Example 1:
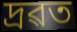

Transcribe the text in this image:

দ্ৰৱত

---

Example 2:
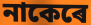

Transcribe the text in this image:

নাকেৰে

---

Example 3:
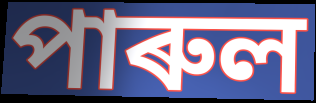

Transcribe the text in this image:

পাৰুল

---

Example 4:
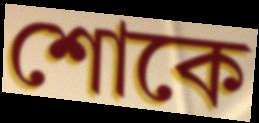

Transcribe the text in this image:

শোকে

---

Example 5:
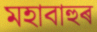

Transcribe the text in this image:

মহাবাহুৰ